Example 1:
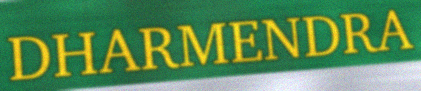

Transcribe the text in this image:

DHARMENDRA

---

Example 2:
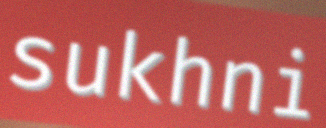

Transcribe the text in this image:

sukhni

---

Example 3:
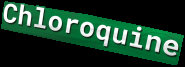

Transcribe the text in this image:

Chloroquine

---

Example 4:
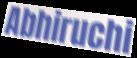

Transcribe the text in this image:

Abhiruchi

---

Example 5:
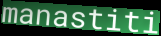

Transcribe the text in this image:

manastiti